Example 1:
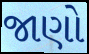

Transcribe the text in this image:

જાણો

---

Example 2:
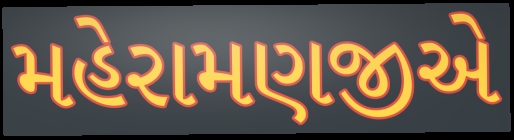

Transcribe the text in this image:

મહેરામણજીએ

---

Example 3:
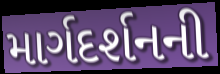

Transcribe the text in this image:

માર્ગદર્શનની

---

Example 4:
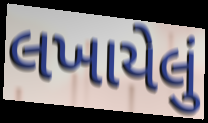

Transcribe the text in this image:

લખાયેલું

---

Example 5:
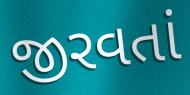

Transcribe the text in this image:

જીરવતાં